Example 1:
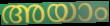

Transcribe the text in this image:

അയാം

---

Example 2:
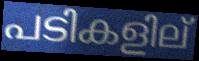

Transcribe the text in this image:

പടികളില്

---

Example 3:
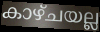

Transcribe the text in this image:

കാഴ്ചയല്ല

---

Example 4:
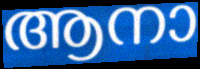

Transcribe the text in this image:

ആനാ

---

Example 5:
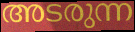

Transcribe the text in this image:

അടരുന്ന